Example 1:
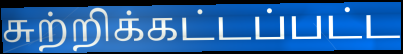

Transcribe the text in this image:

சுற்றிக்கட்டப்பட்ட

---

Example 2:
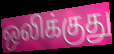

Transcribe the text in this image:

ஒலிக்குது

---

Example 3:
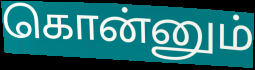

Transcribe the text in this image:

கொன்னும்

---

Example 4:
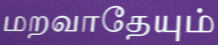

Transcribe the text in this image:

மறவாதேயும்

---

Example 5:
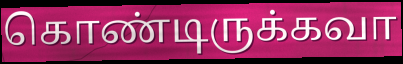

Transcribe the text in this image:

கொண்டிருக்கவா